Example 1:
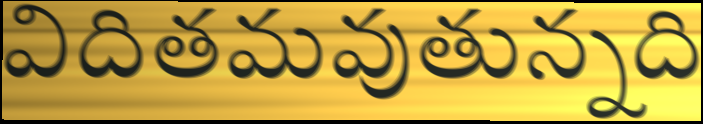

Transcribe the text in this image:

విదితమవుతున్నది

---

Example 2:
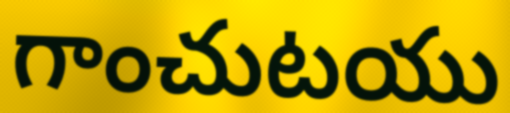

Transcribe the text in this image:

గాంచుటయు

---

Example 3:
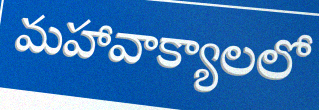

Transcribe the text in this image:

మహావాక్యాలలో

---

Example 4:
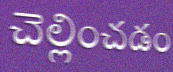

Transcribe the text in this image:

చెల్లించడం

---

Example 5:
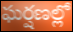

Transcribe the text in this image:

ఘర్షణల్లో